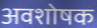
अवशोषक